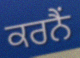
ਕਰਨੈਂ